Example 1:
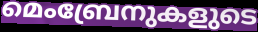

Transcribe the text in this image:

മെംബ്രേനുകളുടെ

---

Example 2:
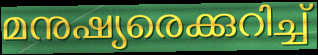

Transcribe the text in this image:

മനുഷ്യരെക്കുറിച്ച്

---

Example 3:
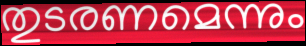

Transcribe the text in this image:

തുടരണമെന്നും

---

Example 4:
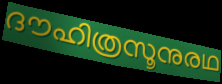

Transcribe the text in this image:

ദൗഹിത്രസൂനുരഥ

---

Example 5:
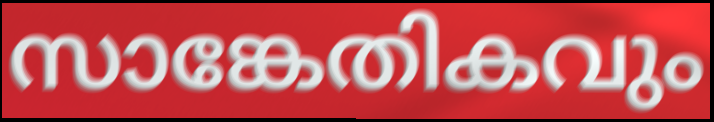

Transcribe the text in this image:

സാങ്കേതികവും